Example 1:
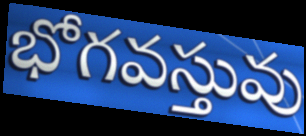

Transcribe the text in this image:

భోగవస్తువు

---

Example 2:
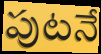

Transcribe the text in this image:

పుటనే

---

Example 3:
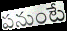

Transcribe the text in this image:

పనుంటే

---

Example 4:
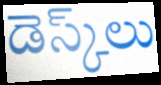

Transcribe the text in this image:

డెస్క్‌లు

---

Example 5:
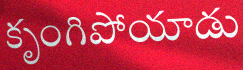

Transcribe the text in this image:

కృంగిపోయాడు